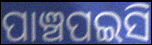
ପାଞ୍ଚପଇସି